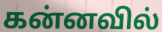
கன்னவில்